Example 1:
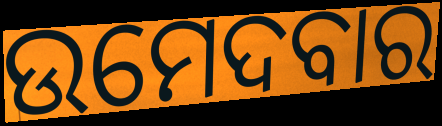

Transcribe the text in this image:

ଉମେଦବାର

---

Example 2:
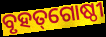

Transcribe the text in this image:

ବୃହତ୍‌ଗୋଷ୍ଠୀ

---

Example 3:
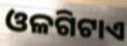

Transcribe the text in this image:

ଓଳଗିଟାଏ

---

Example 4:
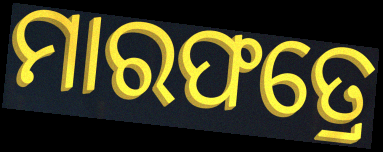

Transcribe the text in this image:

ମାରଫତ୍ରେ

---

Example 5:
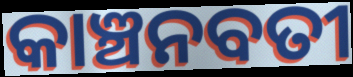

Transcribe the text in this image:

କାଞ୍ଚନବତୀ